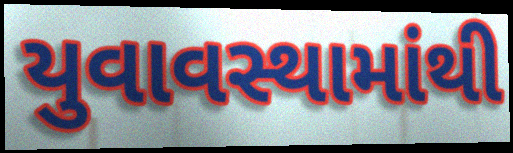
યુવાવસ્થામાંથી